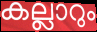
കല്ലാറും